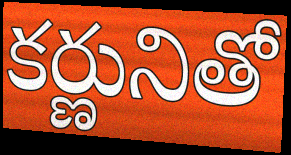
కర్ణునితో